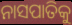
ନାସପାତିକୁ